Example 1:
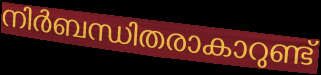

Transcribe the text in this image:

നിർബന്ധിതരാകാറുണ്ട്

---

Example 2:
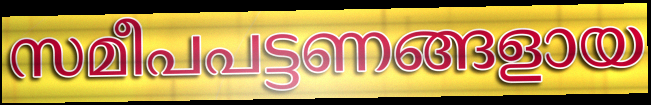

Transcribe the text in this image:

സമീപപട്ടണങ്ങളായ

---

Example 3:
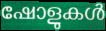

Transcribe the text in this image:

ഷോളുകൾ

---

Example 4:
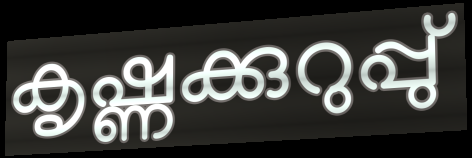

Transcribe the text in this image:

കൃഷ്ണക്കുറുപ്പു്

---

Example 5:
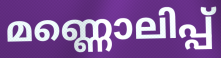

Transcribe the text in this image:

മണ്ണൊലിപ്പ്